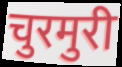
चुरमुरी